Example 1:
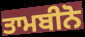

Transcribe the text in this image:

ਤਾਮਬੀਨੋ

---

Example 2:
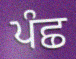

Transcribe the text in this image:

ਪੰਛ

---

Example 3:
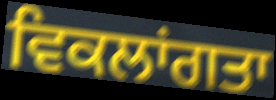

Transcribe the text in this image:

ਵਿਕਲਾਂਗਤਾ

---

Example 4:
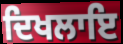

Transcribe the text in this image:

ਦਿਖਲਾਇ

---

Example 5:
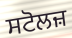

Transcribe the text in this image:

ਸਟੋਲਜ਼